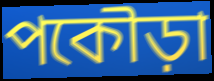
পকৌড়া